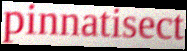
pinnatisect